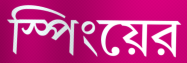
স্পিংয়ের